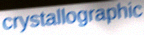
crystallographic